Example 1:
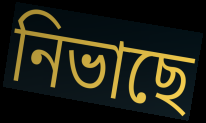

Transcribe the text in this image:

নিভাছে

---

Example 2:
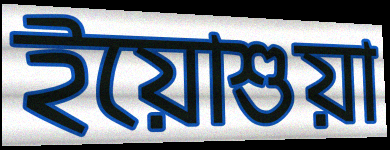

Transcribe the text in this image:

ইয়োশুয়া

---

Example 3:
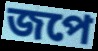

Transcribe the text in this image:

জপে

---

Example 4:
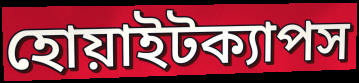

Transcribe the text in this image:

হোয়াইটক্যাপস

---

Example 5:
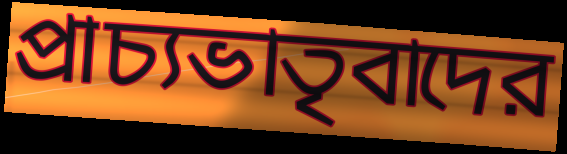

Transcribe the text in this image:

প্রাচ্যভাতৃবাদের